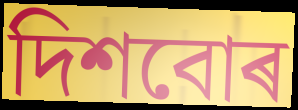
দিশবোৰ